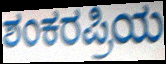
ಶಂಕರಪ್ರಿಯ